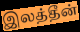
இலத்தீன்